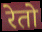
रेतो